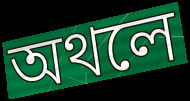
অথলে